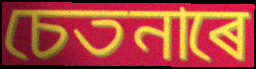
চেতনাৰে